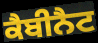
ਕੈਬੀਨੈਟ